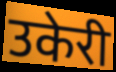
उकेरी